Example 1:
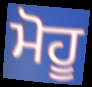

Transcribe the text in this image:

ਮੋਹੂ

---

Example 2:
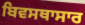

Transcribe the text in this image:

ਬਿਵਸਥਾਸਾਰ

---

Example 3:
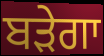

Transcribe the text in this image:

ਬੜੇਗਾ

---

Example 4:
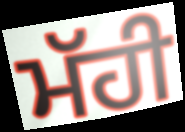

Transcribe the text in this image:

ਮੱਹੀ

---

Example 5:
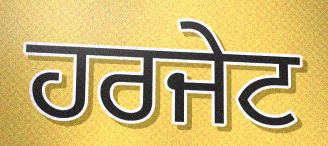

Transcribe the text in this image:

ਹਰਜੇਟ